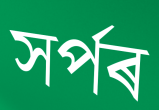
সৰ্পৰ